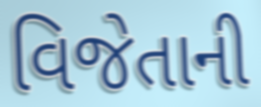
વિજેતાની